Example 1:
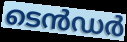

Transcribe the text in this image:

ടെൻഡർ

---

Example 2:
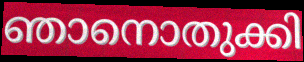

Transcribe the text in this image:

ഞാനൊതുക്കി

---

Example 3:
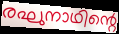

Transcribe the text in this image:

രഘുനാഥിന്റെ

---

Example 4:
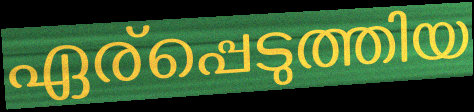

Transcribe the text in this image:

ഏര്പ്പെടുത്തിയ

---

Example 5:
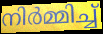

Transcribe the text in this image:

നിർമ്മിച്ച്